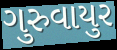
ગુરુવાયુર